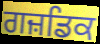
ਗਜ਼ਡਿਕ